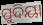
ପୁଦିୟା